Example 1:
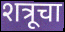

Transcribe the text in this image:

शत्रूचा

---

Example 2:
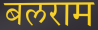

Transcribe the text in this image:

बलराम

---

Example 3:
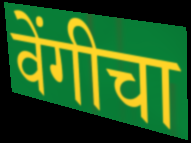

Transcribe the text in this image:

वेंगीचा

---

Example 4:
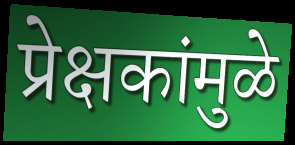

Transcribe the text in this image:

प्रेक्षकांमुळे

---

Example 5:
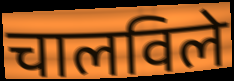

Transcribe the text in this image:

चालविले